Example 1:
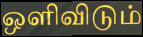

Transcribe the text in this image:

ஒளிவிடும்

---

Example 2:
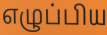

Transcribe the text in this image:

எழுப்பிய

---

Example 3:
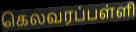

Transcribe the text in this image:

கெலவரப்பள்ளி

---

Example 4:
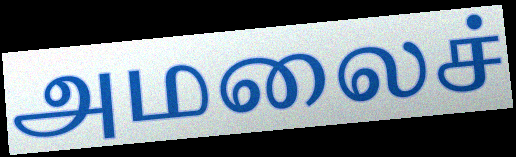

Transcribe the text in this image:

அமலைச்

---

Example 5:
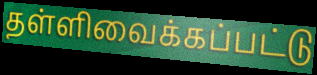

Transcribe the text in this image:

தள்ளிவைக்கப்பட்டு